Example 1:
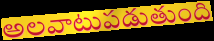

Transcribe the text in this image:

అలవాటుపడుతుంది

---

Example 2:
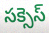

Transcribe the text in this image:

సక్సెస్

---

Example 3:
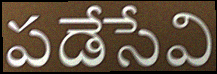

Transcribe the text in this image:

పడేసేవి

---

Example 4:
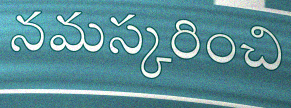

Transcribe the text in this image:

నమస్కరించి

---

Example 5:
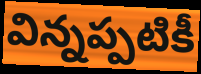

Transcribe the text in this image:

విన్నప్పటికీ